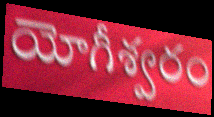
యోగీశ్వరం